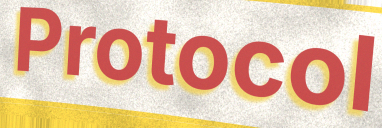
Protocol